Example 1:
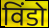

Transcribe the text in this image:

विंडो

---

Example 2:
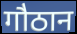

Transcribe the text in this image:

गौठान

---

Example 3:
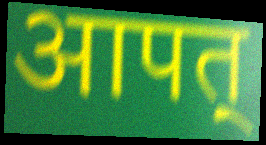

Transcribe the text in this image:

आपत्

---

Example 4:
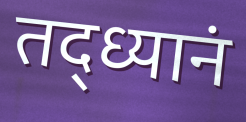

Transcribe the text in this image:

तद्ध्यानं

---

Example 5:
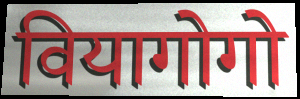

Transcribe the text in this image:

वियागोगो